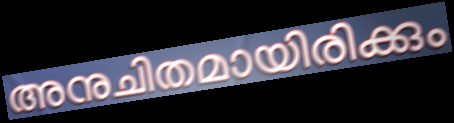
അനുചിതമായിരിക്കും